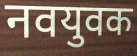
नवयुवक